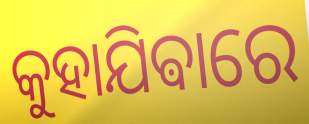
କୁହାଯିଵାରେ